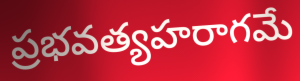
ప్రభవత్యహరాగమే